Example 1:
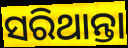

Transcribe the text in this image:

ସରିଥାନ୍ତା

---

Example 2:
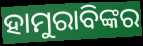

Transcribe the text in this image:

ହାମୁରାବିଙ୍କର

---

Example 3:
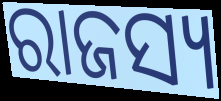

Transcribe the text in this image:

ରାଜସ୍ୟ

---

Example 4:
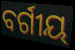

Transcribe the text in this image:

ବର୍ଗୀୟ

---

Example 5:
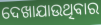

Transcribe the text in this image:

ଦେଖାଯାଉଥିବାର